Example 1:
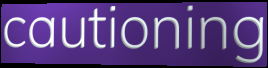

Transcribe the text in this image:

cautioning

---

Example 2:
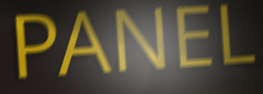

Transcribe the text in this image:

PANEL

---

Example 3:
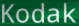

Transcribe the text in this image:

Kodak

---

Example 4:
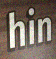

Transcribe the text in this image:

hin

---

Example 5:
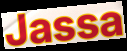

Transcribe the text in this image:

Jassa